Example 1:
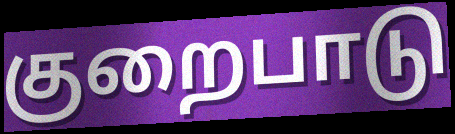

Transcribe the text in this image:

குறைபாடு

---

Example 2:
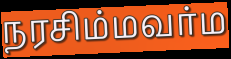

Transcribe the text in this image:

நரசிம்மவர்ம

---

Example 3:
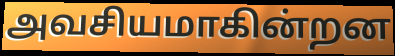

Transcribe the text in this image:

அவசியமாகின்றன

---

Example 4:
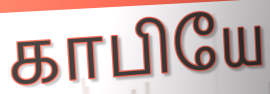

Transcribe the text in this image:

காபியே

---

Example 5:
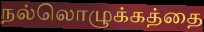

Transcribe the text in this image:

நல்லொழுக்கத்தை